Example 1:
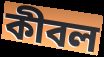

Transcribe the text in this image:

কীবল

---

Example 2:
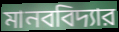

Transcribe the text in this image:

মানববিদ্যার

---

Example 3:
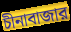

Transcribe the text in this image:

চীনাবাজার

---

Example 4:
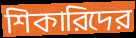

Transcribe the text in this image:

শিকারিদের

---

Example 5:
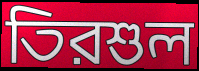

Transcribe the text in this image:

তিরশুল